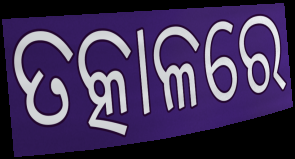
ତତ୍କାଳରେ